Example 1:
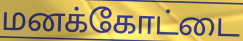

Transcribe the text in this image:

மனக்கோட்டை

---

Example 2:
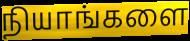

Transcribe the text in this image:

நியாங்களை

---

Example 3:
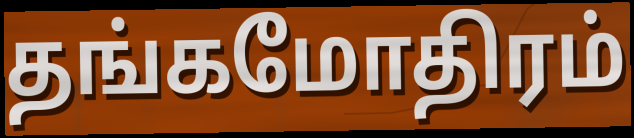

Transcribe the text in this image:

தங்கமோதிரம்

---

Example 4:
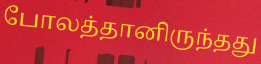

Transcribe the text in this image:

போலத்தானிருந்தது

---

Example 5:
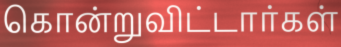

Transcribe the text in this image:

கொன்றுவிட்டார்கள்